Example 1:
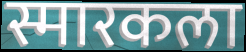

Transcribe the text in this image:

स्मारकला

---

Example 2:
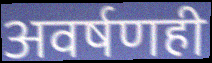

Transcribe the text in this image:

अवर्षणही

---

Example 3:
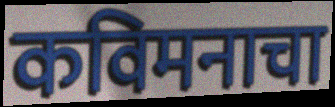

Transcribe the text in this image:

कविमनाचा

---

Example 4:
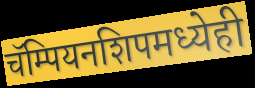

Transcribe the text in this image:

चॅम्पियनशिपमध्येही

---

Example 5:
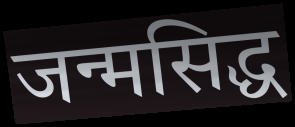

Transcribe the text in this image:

जन्मसिद्ध